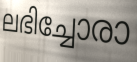
ലഭിച്ചോരാ